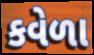
કવેળા